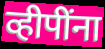
व्हीपींना